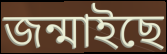
জন্মাইছে